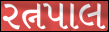
રત્નપાલ